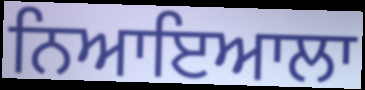
ਨਿਆਇਆਲਾ